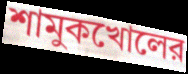
শামুকখোলের